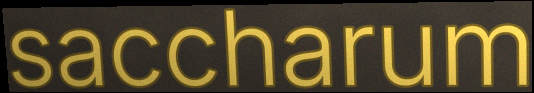
saccharum